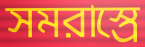
সমরাস্ত্রে